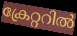
ക്രേറ്ററിൽ